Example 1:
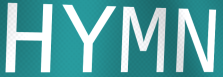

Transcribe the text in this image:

HYMN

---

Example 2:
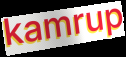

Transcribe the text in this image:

kamrup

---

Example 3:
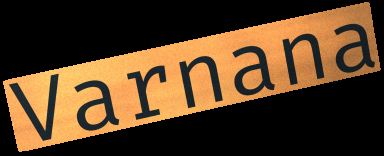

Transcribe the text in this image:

Varnana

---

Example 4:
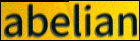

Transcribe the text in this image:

abelian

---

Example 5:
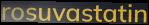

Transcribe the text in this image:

rosuvastatin